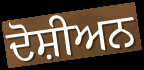
ਦੋਸ਼ੀਅਨ